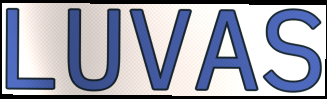
LUVAS